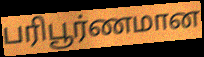
பரிபூர்ணமான